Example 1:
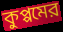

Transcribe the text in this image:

কুপ্পমের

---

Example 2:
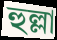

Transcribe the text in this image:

হুল্লা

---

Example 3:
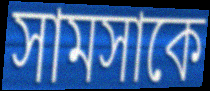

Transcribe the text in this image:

সামসাকে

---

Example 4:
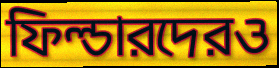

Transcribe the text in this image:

ফিল্ডারদেরও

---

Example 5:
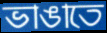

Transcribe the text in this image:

ভাঙাতে